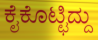
ಕೈಕೊಟ್ಟಿದ್ದು